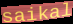
saikal